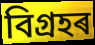
বিগ্ৰহৰ